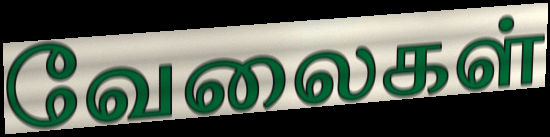
வேலைகள்